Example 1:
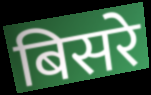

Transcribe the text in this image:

बिसरे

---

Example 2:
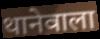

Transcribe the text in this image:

थानेवाला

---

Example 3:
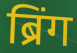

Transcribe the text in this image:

ब्रिंग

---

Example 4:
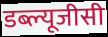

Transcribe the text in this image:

डब्ल्यूजीसी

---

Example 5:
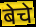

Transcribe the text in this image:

बेचे